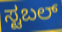
ಸ್ಟಬಲ್